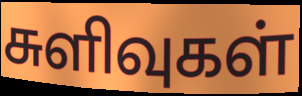
சுளிவுகள்